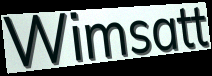
Wimsatt